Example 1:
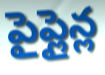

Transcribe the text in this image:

పైప్లైన్ల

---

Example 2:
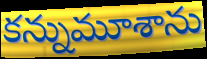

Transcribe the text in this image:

కన్నుమూశాను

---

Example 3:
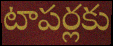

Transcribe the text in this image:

టాపర్లకు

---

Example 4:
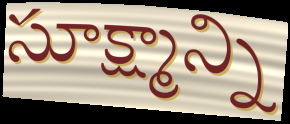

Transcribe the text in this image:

సూక్ష్మాన్ని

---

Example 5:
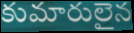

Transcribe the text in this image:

కుమారులైన